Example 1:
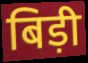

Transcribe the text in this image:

बिड़ी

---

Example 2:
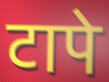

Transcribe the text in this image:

टापे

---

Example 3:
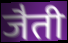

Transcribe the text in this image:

जैती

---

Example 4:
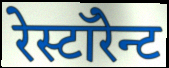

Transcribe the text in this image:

रेस्टॉरेन्ट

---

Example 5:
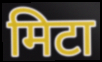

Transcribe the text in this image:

मिटा